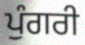
ਪੁੰਗਰੀ